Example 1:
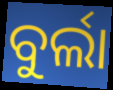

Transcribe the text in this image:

ବୁର୍ଲା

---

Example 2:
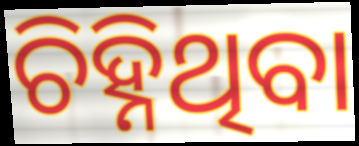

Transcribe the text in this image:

ଚିହ୍ନିଥିବା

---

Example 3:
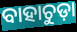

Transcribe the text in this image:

ବାହାଚୁଡ଼ା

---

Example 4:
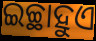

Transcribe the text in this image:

ଇଚ୍ଛାହୁଏ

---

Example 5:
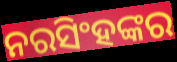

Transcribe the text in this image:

ନରସିଂହଙ୍କର